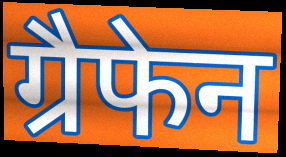
ग्रैफेन